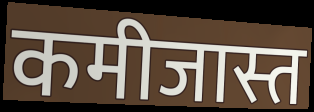
कमीजास्त